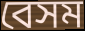
বেসম